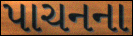
પાચનના